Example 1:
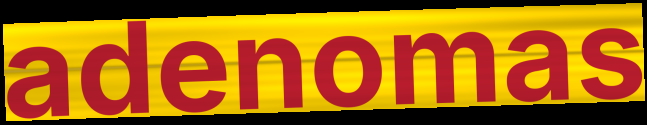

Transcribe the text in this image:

adenomas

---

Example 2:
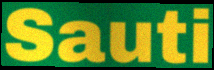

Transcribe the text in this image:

Sauti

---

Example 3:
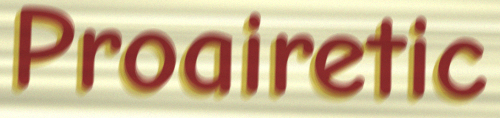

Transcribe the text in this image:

Proairetic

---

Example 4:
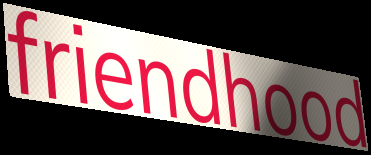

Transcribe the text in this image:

friendhood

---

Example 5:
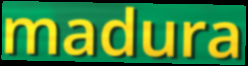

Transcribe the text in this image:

madura